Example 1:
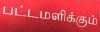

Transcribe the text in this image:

பட்டமளிக்கும்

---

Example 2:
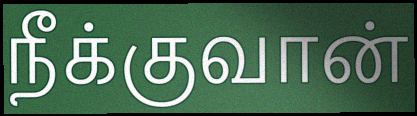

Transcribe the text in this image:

நீக்குவான்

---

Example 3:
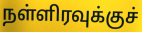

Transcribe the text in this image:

நள்ளிரவுக்குச்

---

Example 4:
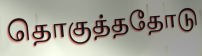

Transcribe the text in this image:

தொகுத்ததோடு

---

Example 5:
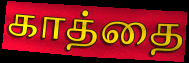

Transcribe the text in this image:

காத்தை